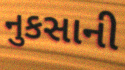
નુકસાની